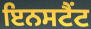
ਇਨਸਟੈਂਟ